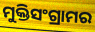
ମୁକ୍ତିସଂଗ୍ରାମର